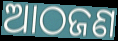
ଆଠଜଣ